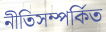
নীতিসম্পর্কিত